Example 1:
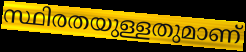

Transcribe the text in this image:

സ്ഥിരതയുള്ളതുമാണ്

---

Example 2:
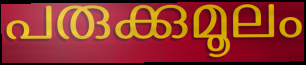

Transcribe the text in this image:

പരുക്കുമൂലം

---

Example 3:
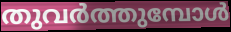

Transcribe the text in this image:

തുവർത്തുമ്പോൾ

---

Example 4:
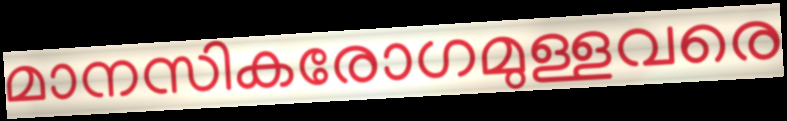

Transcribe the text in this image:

മാനസികരോഗമുള്ളവരെ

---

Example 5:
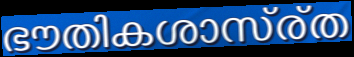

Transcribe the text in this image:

ഭൗതികശാസ്ര്ത